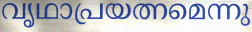
വൃഥാപ്രയത്നമെന്നു